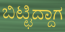
ಬಿಟ್ಟಿದ್ದಾಗ